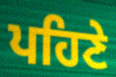
ਪਹਿਣੇ